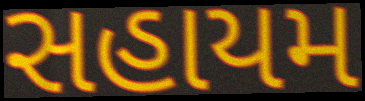
સહાયમ